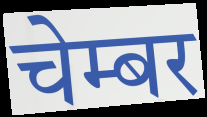
चेम्बर